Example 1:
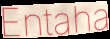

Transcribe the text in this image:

Entaha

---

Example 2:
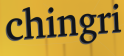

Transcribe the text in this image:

chingri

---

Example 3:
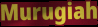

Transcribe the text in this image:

Murugiah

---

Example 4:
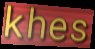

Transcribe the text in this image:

khes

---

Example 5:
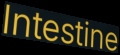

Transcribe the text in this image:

Intestine